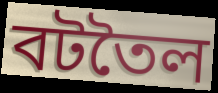
বটতৈল